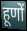
हूणों